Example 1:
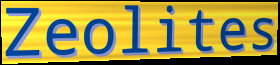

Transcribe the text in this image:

Zeolites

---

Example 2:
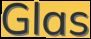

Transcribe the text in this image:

Glas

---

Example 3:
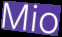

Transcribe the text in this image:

Mio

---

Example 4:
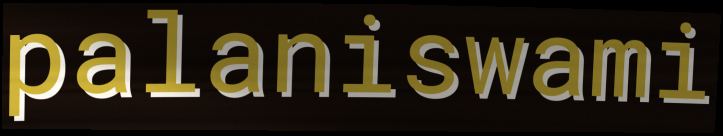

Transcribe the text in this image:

palaniswami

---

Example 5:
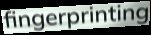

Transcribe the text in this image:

fingerprinting